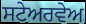
ਸਟੇਅਰਵੇਅ